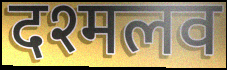
दश्मलव